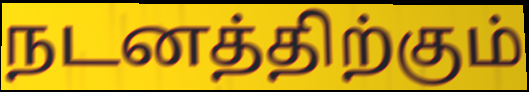
நடனத்திற்கும்